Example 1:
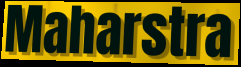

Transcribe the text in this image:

Maharstra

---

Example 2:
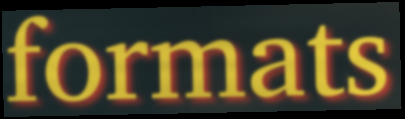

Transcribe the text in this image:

formats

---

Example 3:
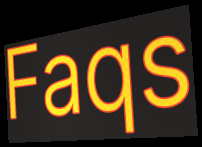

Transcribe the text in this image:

Faqs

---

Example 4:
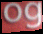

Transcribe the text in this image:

og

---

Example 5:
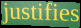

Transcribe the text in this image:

justifies